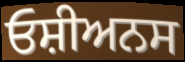
ਓਸ਼ੀਅਨਸ